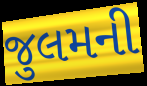
જુલમની